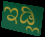
ಇಡ್ಲಿ